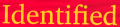
Identified